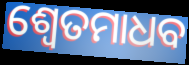
ଶ୍ୱେତମାଧବ